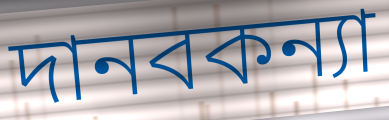
দানবকন্যা